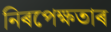
নিৰপেক্ষতাৰ